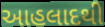
આહલાદથી